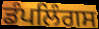
ਡੰਪਲਿੰਗਸ